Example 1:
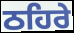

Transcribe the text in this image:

ਠਹਿਰੇ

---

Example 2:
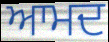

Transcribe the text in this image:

ਆਮਦ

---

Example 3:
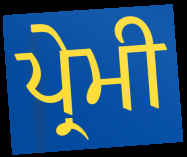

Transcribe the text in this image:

ਪ੍ਰੇਮੀ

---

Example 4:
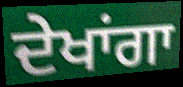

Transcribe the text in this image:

ਦੇਖਾਂਗਾ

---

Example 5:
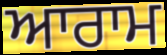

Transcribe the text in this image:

ਆਰਾਮ